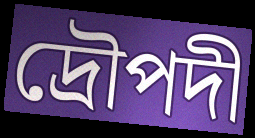
দ্রৌপদী